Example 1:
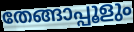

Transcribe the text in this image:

തേങ്ങാപ്പൂളും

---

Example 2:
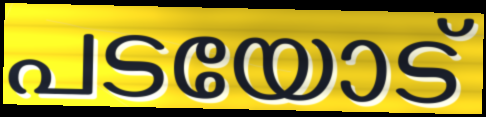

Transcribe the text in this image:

പടയോട്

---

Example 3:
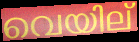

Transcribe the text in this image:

വെയില്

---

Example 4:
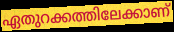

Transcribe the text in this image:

ഏതുറക്കത്തിലേക്കാണ്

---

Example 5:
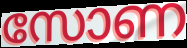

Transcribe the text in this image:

സോണ